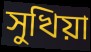
সুখিয়া